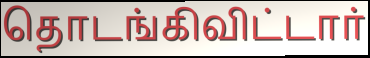
தொடங்கிவிட்டார்